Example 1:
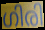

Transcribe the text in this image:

ഗിരി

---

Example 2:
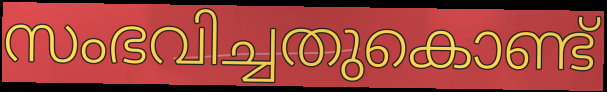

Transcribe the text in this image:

സംഭവിച്ചതുകൊണ്ട്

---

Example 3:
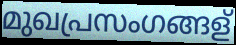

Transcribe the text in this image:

മുഖപ്രസംഗങ്ങള്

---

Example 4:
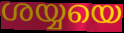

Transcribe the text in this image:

ശയ്യയെ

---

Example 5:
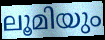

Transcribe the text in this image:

ലൂമിയും